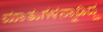
ಮಾತುಗಳನ್ನಾಡಿದ್ದ